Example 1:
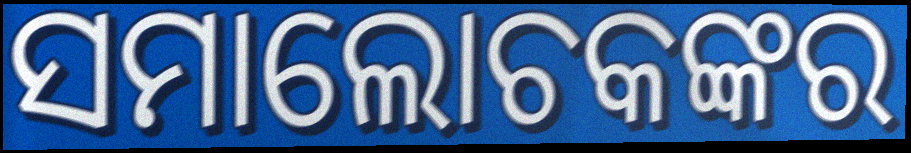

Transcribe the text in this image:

ସମାଲୋଚକଙ୍କର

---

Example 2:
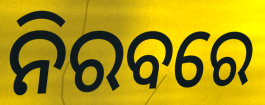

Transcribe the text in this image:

ନିରବରେ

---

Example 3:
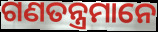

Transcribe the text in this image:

ଗଣତନ୍ତ୍ରମାନେ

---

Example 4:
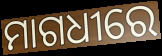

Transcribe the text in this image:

ମାଗଧୀରେ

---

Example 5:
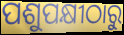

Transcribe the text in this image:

ପଶୁପକ୍ଷୀଠାରୁ